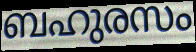
ബഹുരസം